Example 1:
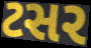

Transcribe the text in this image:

ટસર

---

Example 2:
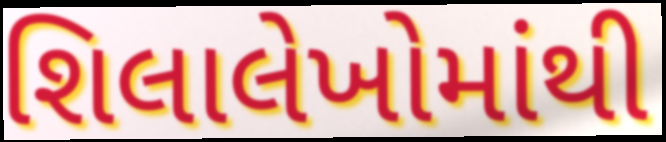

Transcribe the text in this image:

શિલાલેખોમાંથી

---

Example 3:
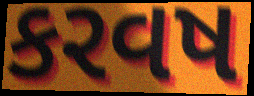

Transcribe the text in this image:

કરવષ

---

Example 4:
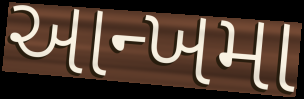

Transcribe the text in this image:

આન્ખમા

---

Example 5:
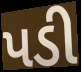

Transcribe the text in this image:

પડી